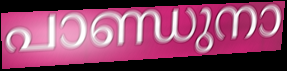
പാണ്ഡുനാ